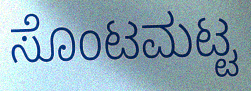
ಸೊಂಟಮಟ್ಟ